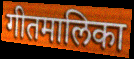
गीतमालिका